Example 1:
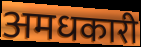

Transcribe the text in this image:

अमधकारी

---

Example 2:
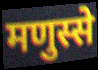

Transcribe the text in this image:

मणुस्से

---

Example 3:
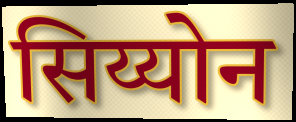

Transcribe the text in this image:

सिय्योन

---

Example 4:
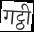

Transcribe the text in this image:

गट्ठी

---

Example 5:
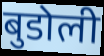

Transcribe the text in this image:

बुडोली